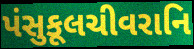
પંસુકૂલચીવરાનિ